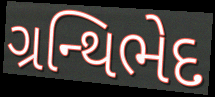
ગ્રન્થિભેદ